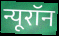
न्यूरॉन